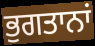
ਭੁਗਤਾਨਾਂ